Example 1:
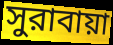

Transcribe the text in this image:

সুরাবায়া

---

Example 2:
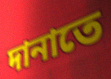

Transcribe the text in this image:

দানাতে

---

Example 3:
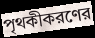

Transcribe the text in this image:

পৃথকীকরণের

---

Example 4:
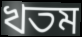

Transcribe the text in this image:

খতম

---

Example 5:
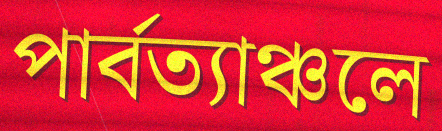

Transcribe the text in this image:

পার্বত্যাঞ্চলে